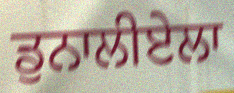
ਡੁਨਾਲੀਏਲਾ